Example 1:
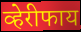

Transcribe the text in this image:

व्हेरीफाय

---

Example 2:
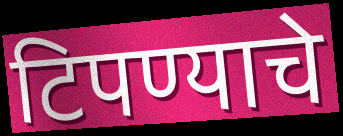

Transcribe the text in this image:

टिपण्याचे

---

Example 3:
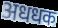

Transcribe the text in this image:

अधधक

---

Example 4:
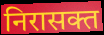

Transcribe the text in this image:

निरासक्त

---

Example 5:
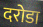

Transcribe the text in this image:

दरोडा